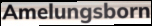
Amelungsborn